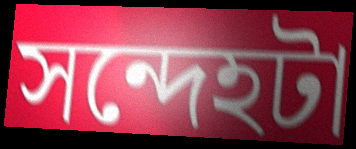
সন্দেহটা